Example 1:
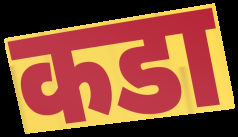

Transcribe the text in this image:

कडा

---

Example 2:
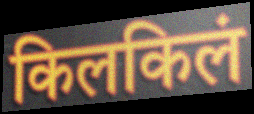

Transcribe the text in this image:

किलकिलं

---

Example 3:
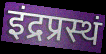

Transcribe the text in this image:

इंद्रप्रस्थं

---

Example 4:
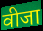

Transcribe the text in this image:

वीजा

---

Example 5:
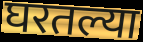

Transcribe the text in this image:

घरतल्या